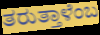
ತರುತ್ತಾಳೆಂಬ